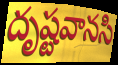
దృష్టవానసి